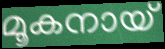
മൂകനായ്